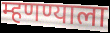
म्हणण्याला